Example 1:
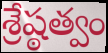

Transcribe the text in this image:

శ్రేష్ఠత్వం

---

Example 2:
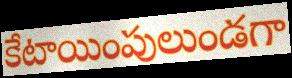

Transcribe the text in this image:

కేటాయింపులుండగా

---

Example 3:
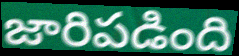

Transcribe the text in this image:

జారిపడింది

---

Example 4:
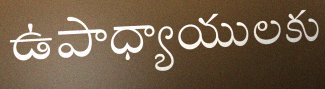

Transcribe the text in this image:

ఉపాధ్యాయులకు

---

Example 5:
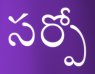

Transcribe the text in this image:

సర్పో